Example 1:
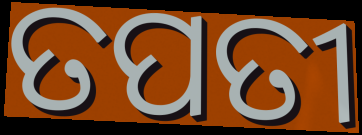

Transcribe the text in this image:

ତପତୀ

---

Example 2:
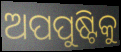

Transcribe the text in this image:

ଅପପୁଷ୍ଟିକୁ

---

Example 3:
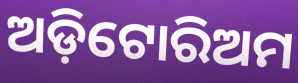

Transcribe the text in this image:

ଅଡ଼ିଟୋରିଅମ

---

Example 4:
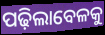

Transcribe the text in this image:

ପଢ଼ିଲାବେଳକୁ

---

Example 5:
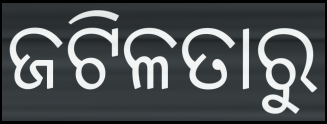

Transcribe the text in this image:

ଜଟିଳତାରୁ